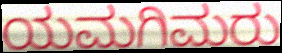
ಯಮಗಿಮರು